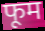
फूम